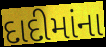
દાદીમાંના